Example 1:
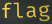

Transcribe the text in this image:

flag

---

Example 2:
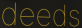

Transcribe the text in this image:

deeds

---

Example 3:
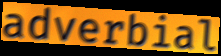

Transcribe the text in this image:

adverbial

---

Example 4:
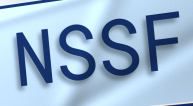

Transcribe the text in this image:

NSSF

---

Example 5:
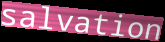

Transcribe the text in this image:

salvation